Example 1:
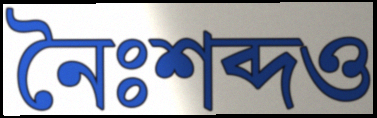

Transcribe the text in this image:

নৈঃশব্দও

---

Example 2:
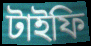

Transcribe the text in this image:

টাইফি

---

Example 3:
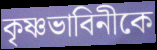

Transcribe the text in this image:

কৃষ্ণভাবিনীকে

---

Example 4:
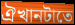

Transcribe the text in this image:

ঐখানটাতে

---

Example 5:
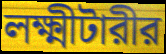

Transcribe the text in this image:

লক্ষ্মীটারীর